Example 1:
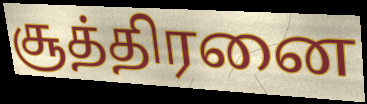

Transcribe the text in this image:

சூத்திரனை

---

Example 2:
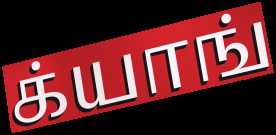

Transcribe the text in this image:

க்யாங்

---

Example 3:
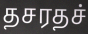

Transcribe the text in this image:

தசரதச்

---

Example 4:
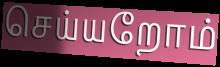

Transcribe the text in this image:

செய்யறோம்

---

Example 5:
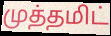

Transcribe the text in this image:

முத்தமிட்